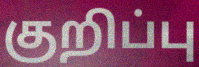
குறிப்பு